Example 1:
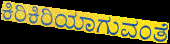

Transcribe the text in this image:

ಕಿರಿಕಿರಿಯಾಗುವಂತೆ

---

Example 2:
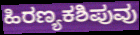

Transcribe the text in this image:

ಹಿರಣ್ಯಕಶಿಪುವು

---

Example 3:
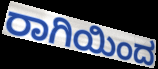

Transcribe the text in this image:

ರಾಗಿಯಿಂದ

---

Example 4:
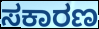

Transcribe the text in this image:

ಸಕಾರಣ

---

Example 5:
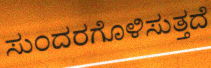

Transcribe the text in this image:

ಸುಂದರಗೊಳಿಸುತ್ತದೆ